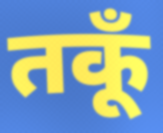
तकूँ